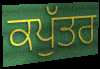
ਕਪੁੱਤਰ